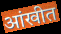
आंखीत